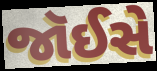
જૉઈસે